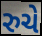
રુચે